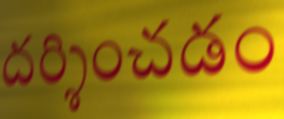
దర్శించడం